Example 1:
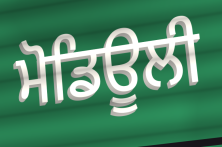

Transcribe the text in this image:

ਮੋਡਿਊਲੀ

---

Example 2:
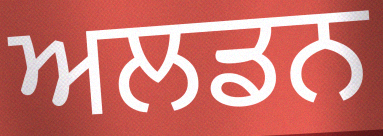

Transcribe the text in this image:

ਅਲਡਨ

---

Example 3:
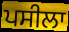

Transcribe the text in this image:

ਪਸੀਲਾ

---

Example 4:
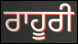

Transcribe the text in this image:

ਰਾਹੂਰੀ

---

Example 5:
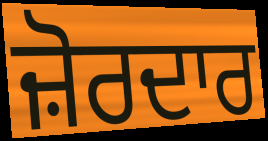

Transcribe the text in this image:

ਜ਼ੋਰਦਾਰ